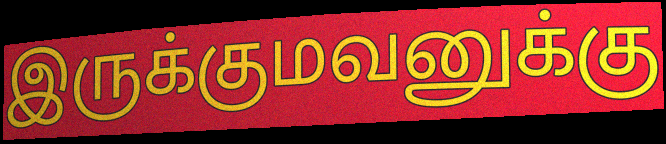
இருக்குமவனுக்கு